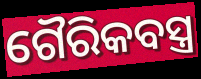
ଗୈରିକବସ୍ତ୍ର